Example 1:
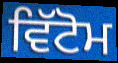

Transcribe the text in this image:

ਵਿੱਟੋਮ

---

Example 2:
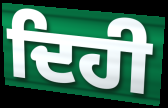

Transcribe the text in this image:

ਦਿਹੀ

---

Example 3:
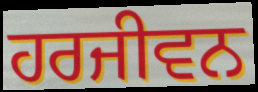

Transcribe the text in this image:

ਹਰਜੀਵਨ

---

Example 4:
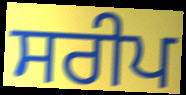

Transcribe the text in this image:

ਸਰੀਪ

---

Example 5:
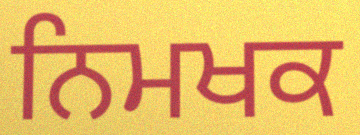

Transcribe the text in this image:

ਨਿਮਖਕ